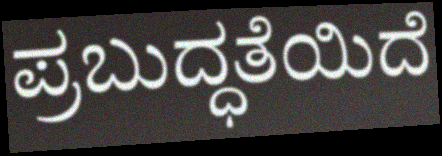
ಪ್ರಬುದ್ಧತೆಯಿದೆ